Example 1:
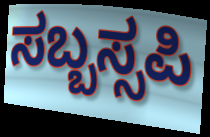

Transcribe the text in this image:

ಸಬ್ಬಸ್ಸಪಿ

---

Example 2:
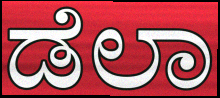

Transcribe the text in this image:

ಡೆಲಾ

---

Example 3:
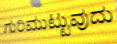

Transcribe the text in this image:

ಗುರಿಮುಟ್ಟುವುದು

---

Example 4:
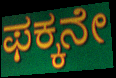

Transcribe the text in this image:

ಫಕ್ಕನೇ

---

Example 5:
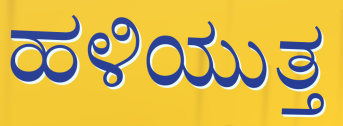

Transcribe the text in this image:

ಹಳಿಯುತ್ತ